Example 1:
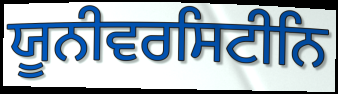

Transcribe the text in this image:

ਯੂਨੀਵਰਸਿਟੀਨਿ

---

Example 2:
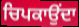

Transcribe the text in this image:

ਚਿਪਕਾਉਂਦਾ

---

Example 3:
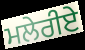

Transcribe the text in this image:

ਮਲੇਰੀਏ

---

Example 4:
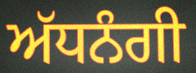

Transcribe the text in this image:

ਅੱਧਨੰਗੀ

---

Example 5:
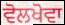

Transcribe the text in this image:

ਵੋਲਖੋਵਾ